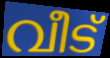
വീട്